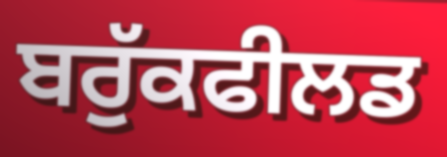
ਬਰੁੱਕਫੀਲਡ